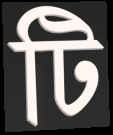
টি